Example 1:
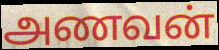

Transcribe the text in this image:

அணவன்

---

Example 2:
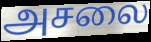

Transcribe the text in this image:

அசலை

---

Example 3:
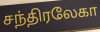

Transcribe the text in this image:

சந்திரலேகா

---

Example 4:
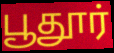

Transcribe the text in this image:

பூதூர்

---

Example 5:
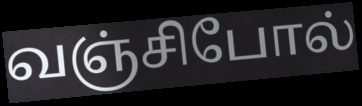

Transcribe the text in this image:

வஞ்சிபோல்